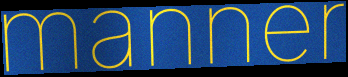
manner